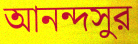
আনন্দসুর